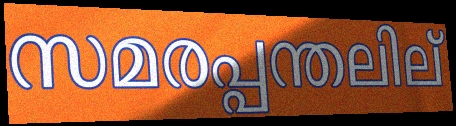
സമരപ്പന്തലില്